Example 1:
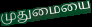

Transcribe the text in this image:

முதுமையை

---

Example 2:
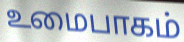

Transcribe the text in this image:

உமைபாகம்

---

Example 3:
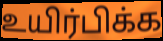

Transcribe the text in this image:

உயிர்பிக்க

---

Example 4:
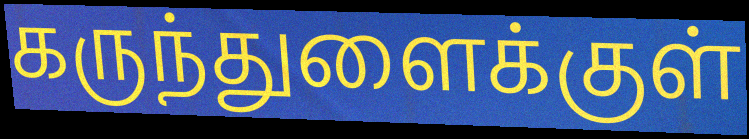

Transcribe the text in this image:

கருந்துளைக்குள்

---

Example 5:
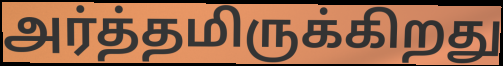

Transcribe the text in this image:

அர்த்தமிருக்கிறது